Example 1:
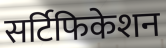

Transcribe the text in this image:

सर्टिफिकेशन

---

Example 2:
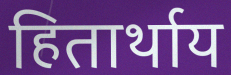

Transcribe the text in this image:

हितार्थाय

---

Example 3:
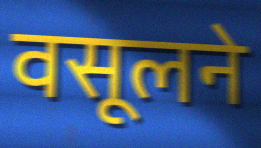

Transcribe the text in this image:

वसूलने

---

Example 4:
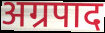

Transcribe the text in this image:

अग्रपाद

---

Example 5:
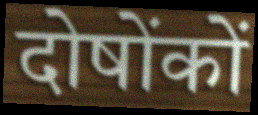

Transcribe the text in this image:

दोषोंकों